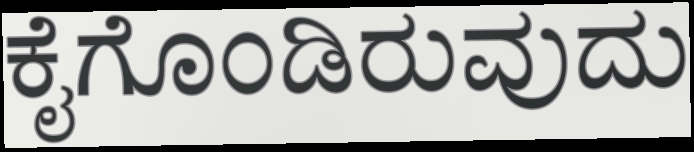
ಕೈಗೊಂಡಿರುವುದು